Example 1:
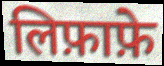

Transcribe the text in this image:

लिफ़ाफ़े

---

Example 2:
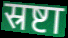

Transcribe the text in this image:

स्रष्टा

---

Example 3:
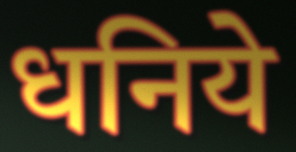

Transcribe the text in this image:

धनिये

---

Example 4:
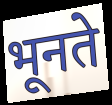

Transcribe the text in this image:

भूनते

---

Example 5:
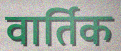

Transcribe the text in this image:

वार्तिक